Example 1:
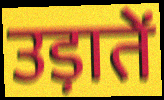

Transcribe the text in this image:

उड़ातें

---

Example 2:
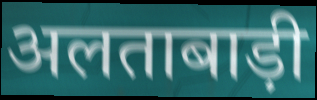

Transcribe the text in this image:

अलताबाड़ी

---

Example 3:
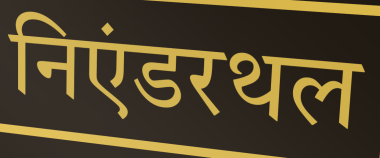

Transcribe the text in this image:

निएंडरथल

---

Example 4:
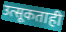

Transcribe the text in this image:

उत्सूकताही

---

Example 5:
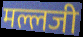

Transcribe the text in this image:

मल्लजी